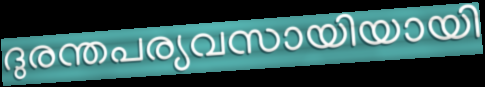
ദുരന്തപര്യവസായിയായി